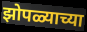
झोपळ्याच्या